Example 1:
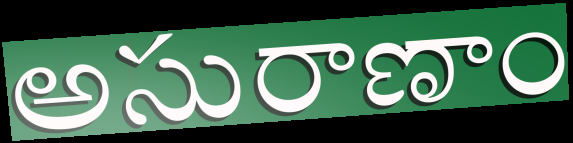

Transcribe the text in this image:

అసురాణాం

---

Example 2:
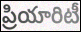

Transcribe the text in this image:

ప్రియారిటీ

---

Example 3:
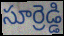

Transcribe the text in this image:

సూర్రెడ్డి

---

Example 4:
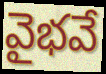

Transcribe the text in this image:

వైభవే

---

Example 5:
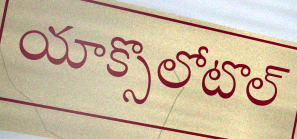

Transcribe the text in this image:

యాక్సొలోటొల్